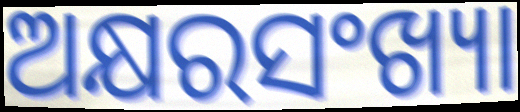
ଅକ୍ଷରସଂଖ୍ୟା